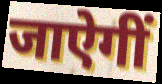
जाऐगीं